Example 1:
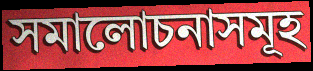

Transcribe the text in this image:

সমালোচনাসমূহ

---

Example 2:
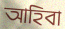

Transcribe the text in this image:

আহিবা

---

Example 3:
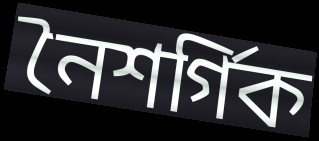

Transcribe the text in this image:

নৈশৰ্গিক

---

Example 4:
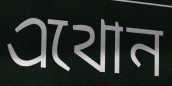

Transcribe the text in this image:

এথোন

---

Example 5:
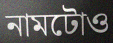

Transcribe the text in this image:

নামটোও